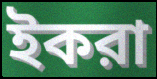
ইকরা